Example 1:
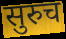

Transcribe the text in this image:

सुरुच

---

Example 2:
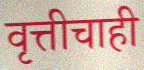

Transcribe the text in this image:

वृत्तीचाही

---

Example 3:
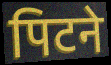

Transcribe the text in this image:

पिटने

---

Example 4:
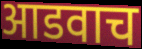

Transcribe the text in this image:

आडवाच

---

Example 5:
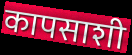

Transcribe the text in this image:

कापसाशी